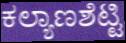
ಕಲ್ಯಾಣಶೆಟ್ಟಿ